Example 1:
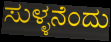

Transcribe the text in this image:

ಸುಳ್ಳನೆಂದು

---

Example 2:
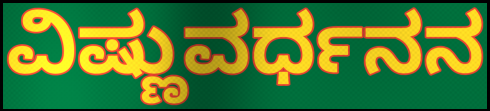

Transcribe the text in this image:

ವಿಷ್ಣುವರ್ಧನನ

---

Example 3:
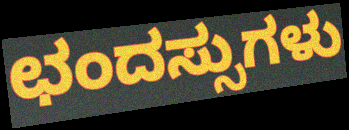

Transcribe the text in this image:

ಛಂದಸ್ಸುಗಳು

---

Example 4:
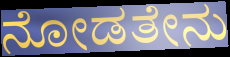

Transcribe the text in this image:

ನೋಡತೇನು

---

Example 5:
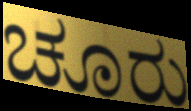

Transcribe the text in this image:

ಚೂರು